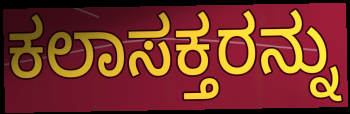
ಕಲಾಸಕ್ತರನ್ನು